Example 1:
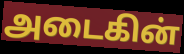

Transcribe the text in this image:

அடைகின்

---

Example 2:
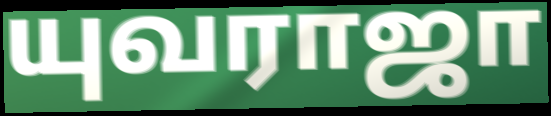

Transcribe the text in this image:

யுவராஜா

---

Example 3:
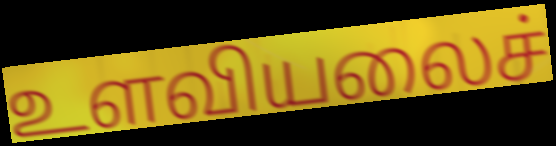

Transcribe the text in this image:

உளவியலைச்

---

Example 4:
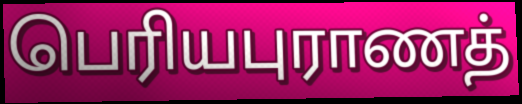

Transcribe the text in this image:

பெரியபுராணத்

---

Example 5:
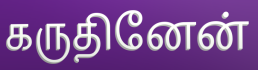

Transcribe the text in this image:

கருதினேன்